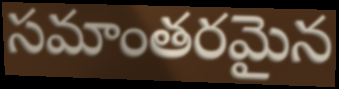
సమాంతరమైన